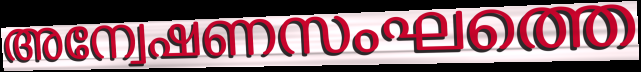
അന്വേഷണസംഘത്തെ